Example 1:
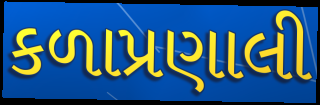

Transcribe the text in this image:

કળાપ્રણાલી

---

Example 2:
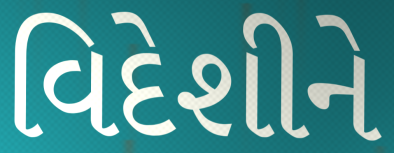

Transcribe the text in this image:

વિદેશીને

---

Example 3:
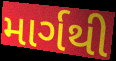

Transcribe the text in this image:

માર્ગથી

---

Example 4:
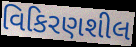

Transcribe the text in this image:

વિકિરણશીલ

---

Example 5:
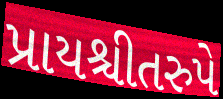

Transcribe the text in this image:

પ્રાયશ્ચીતરુપે